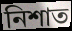
নিশাত